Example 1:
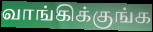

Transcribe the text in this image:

வாங்கிக்குங்க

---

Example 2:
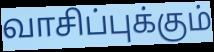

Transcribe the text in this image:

வாசிப்புக்கும்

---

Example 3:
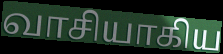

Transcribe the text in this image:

வாசியாகிய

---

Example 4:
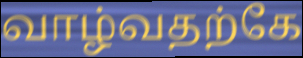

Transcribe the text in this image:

வாழ்வதற்கே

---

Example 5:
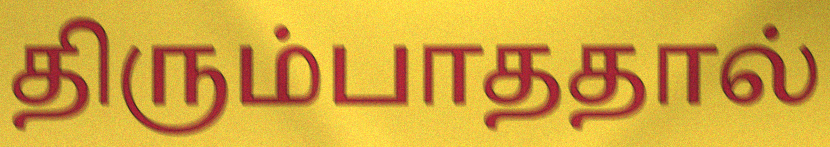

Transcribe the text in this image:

திரும்பாததால்